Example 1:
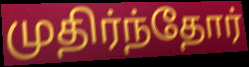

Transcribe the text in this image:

முதிர்ந்தோர்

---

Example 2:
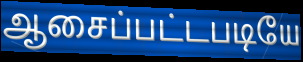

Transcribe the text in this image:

ஆசைப்பட்டபடியே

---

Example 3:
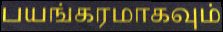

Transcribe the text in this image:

பயங்கரமாகவும்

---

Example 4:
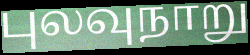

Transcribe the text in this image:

புலவுநாறு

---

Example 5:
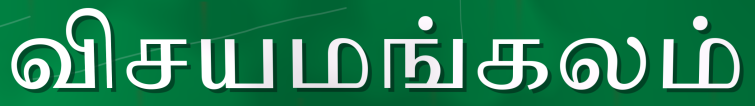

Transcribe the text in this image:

விசயமங்கலம்